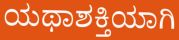
ಯಥಾಶಕ್ತಿಯಾಗಿ